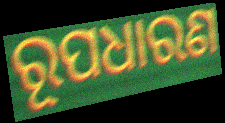
ରୂପଧାରଣ